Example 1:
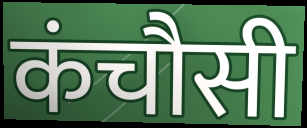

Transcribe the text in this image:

कंचौसी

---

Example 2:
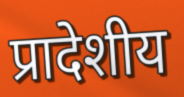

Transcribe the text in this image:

प्रादेशीय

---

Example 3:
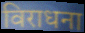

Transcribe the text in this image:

विराधना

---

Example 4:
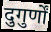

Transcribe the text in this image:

दुगुर्णों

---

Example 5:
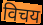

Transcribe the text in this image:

विचय